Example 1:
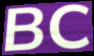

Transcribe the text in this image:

BC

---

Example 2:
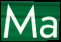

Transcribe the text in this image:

Ma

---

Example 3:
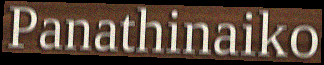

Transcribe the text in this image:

Panathinaiko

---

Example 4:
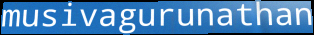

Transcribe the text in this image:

musivagurunathan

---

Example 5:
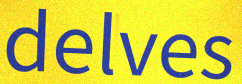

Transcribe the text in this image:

delves